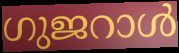
ഗുജറാൾ